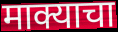
माक्याचा